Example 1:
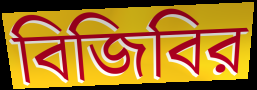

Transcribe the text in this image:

বিজিবির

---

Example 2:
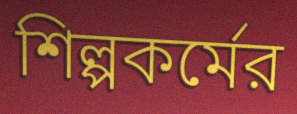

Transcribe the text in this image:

শিল্পকর্মের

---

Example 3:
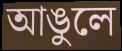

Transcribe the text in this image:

আঙুলে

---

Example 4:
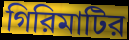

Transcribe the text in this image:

গিরিমাটির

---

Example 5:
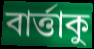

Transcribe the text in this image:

বার্ত্তাকু